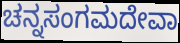
ಚನ್ನಸಂಗಮದೇವಾ